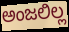
ಅಂಜಲಿಲ್ಲ